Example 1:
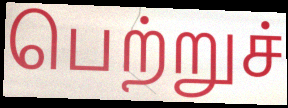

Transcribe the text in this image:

பெற்றுச்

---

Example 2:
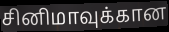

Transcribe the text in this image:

சினிமாவுக்கான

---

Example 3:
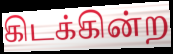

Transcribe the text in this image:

கிடக்கின்ற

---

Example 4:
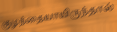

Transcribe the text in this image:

குழந்தையாயிருந்தால்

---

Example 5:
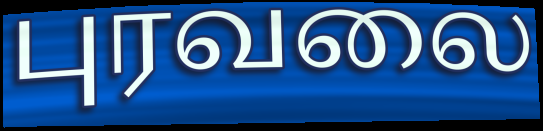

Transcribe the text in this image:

புரவலை